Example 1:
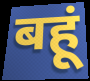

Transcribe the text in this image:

बहूं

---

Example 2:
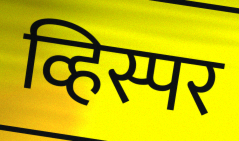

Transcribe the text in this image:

व्हिस्पर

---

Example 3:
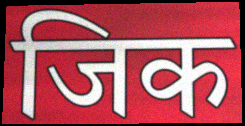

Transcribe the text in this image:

जिक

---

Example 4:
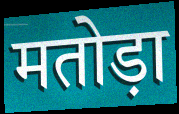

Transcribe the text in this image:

मतोड़ा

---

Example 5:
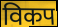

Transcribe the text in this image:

विकप